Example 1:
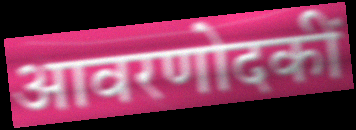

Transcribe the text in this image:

आवरणोदकीं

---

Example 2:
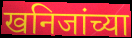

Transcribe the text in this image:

खनिजांच्या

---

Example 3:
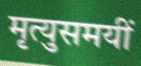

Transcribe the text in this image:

मृत्युसमयीं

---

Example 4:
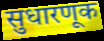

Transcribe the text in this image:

सुधारणूक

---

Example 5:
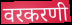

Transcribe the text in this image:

वरकरणी